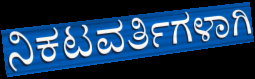
ನಿಕಟವರ್ತಿಗಳಾಗಿ